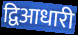
द्विआधारी